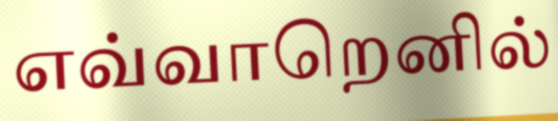
எவ்வாறெனில்